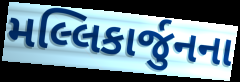
મલ્લિકાર્જુનના